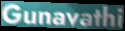
Gunavathi